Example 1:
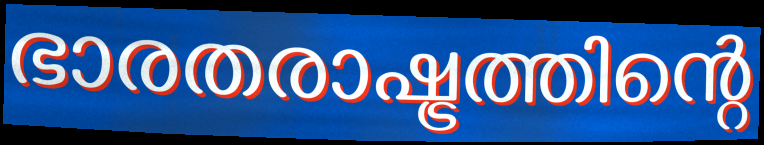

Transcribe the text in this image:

ഭാരതരാഷ്ട്രത്തിന്റെ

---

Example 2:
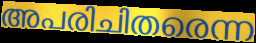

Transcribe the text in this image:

അപരിചിതരെന്ന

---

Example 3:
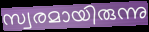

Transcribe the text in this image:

സ്വരമായിരുന്നു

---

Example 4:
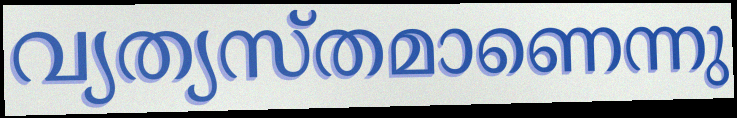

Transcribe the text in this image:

വ്യത്യസ്തമാണെന്നു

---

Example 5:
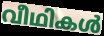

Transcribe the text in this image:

വീഥികൾ